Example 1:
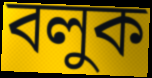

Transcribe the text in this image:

বলুক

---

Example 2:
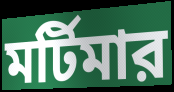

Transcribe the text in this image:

মর্টিমার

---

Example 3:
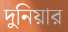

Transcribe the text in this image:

দুনিয়ার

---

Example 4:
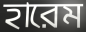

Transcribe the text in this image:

হারেম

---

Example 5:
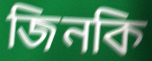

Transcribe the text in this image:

জিনকি